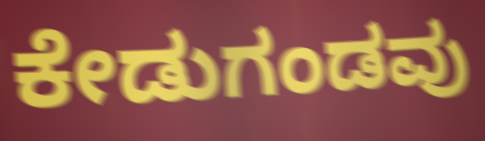
ಕೇಡುಗಂಡವು